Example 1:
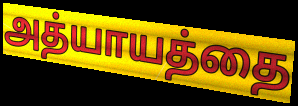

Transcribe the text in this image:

அத்யாயத்தை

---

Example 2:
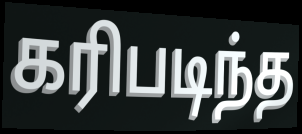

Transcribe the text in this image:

கரிபடிந்த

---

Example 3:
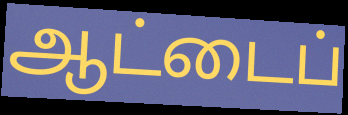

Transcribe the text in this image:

ஆட்டைப்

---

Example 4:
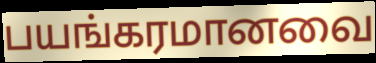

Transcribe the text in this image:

பயங்கரமானவை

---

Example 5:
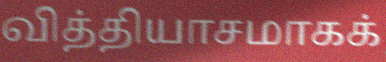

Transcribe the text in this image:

வித்தியாசமாகக்